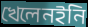
খেলেনইনি